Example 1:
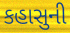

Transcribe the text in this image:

કહાસુની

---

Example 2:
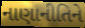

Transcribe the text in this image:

નાણાનીતિને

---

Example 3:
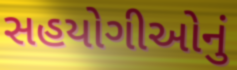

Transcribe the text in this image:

સહયોગીઓનું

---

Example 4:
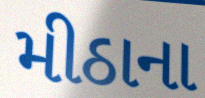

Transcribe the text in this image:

મીઠાના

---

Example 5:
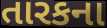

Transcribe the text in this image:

તારકના